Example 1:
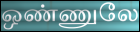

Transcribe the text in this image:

ஒண்ணுலே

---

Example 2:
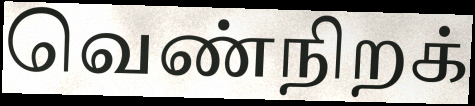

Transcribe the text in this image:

வெண்நிறக்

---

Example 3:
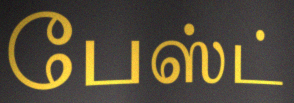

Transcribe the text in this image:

பேஸ்ட்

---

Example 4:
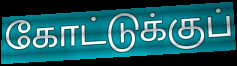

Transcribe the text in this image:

கோட்டுக்குப்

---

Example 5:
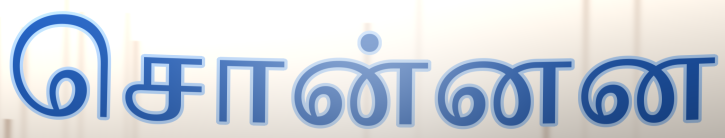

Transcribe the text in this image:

சொன்னன